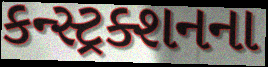
કન્સ્ટ્રક્શનના